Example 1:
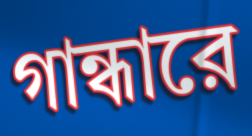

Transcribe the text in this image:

গান্ধারে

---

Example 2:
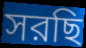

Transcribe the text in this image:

সরছি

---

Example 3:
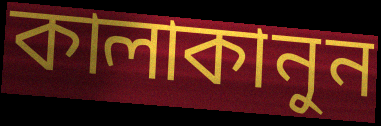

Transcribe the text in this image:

কালাকানুন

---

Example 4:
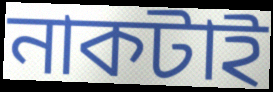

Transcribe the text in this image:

নাকটাই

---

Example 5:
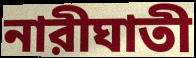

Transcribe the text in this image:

নারীঘাতী